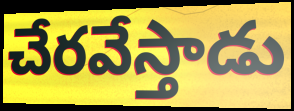
చేరవేస్తాడు